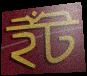
ইঁট